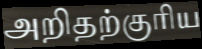
அறிதற்குரிய